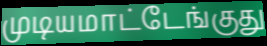
முடியமாட்டேங்குது